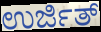
ಉರ್ಜಿತ್